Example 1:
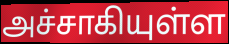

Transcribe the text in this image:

அச்சாகியுள்ள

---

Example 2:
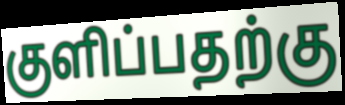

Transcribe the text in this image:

குளிப்பதற்கு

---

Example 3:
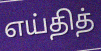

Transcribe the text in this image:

எய்தித்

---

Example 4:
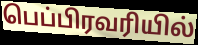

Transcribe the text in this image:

பெப்பிரவரியில்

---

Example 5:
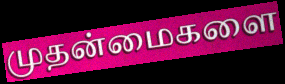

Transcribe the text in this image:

முதன்மைகளை